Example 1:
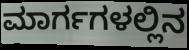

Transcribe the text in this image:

ಮಾರ್ಗಗಳಲ್ಲಿನ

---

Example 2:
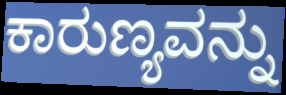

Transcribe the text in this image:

ಕಾರುಣ್ಯವನ್ನು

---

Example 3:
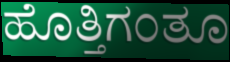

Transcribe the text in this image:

ಹೊತ್ತಿಗಂತೂ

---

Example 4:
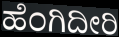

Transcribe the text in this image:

ಹೆಂಗಿದೀರಿ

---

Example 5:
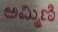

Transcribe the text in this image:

ಅಮ್ಮಿಣಿ